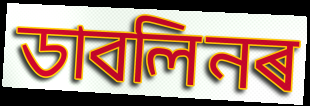
ডাবলিনৰ